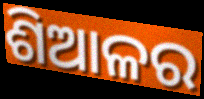
ଶିଆଳର